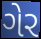
ગેર